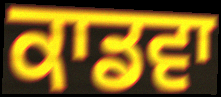
ਕਾਡਵਾ